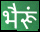
भैरूं